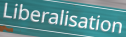
Liberalisation